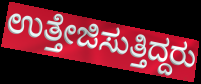
ಉತ್ತೇಜಿಸುತ್ತಿದ್ದರು